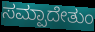
ಸಮ್ಪಾದೇತುಂ